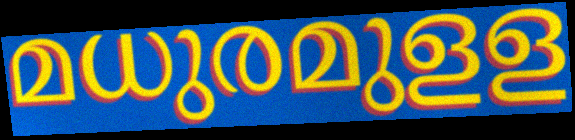
മധുരമുളള